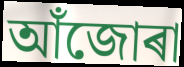
আঁজোৰা